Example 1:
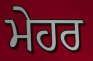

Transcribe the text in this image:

ਮੇਹਰ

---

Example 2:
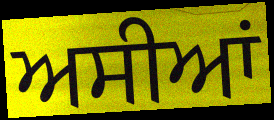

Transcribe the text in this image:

ਅਸੀਆਂ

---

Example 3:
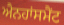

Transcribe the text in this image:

ਐਨਹਾਂਸਮੈਂਟ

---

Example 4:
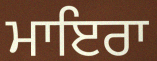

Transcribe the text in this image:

ਮਾਇਰਾ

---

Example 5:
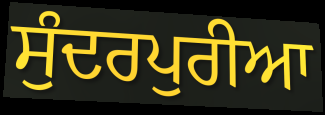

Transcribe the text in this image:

ਸੁੰਦਰਪੁਰੀਆ